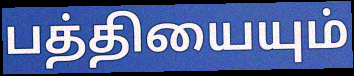
பத்தியையும்